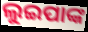
ଲୁଇପାଙ୍କ